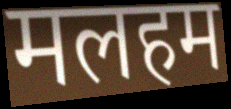
मलहम